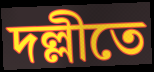
দল্লীতে